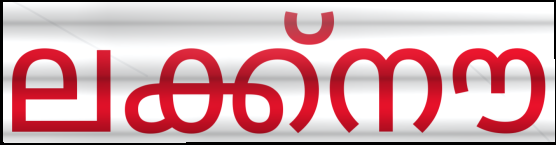
ലക്ക്നൗ